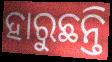
ହାରୁଛନ୍ତି